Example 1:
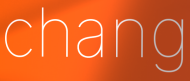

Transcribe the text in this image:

chang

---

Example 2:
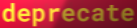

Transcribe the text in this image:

deprecate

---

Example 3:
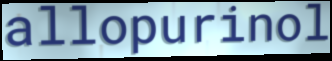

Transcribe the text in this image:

allopurinol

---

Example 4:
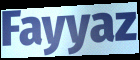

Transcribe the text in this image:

Fayyaz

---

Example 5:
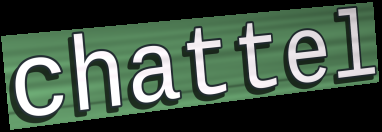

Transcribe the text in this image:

chattel